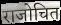
राजोचित